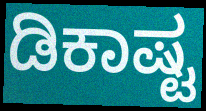
ಡಿಕಾಷ್ಟ